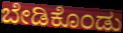
ಬೇಡಿಕೊಂಡು